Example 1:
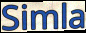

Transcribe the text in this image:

Simla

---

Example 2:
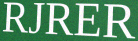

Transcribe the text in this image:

RJRER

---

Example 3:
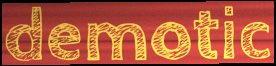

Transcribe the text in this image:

demotic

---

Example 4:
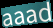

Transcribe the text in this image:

aaad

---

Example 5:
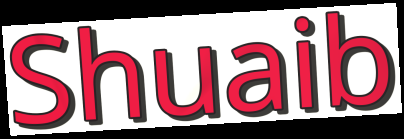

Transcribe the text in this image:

Shuaib